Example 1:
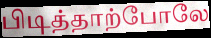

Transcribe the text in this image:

பிடித்தாற்போலே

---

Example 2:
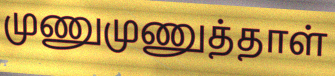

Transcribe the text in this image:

முணுமுணுத்தாள்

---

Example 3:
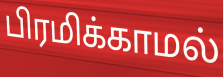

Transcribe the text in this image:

பிரமிக்காமல்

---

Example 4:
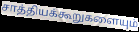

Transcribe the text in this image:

சாத்தியக்கூறுகளையும்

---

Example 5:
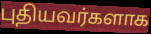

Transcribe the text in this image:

புதியவர்களாக